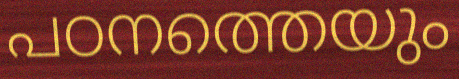
പഠനത്തെയും